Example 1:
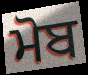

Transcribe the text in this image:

ਮੋਬ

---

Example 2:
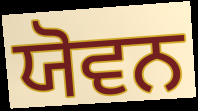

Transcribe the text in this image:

ਯੋਵਨ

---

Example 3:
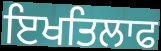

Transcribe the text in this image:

ਇਖਤਿਲਾਫ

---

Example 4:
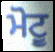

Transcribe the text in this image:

ਮੋਟੂ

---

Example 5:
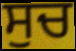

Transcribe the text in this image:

ਸੁਚ